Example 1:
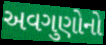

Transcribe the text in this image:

અવગુણોનો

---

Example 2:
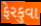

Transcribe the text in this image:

ફેરકુવા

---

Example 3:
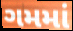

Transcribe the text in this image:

ગમમાં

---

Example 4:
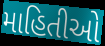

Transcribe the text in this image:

માહિતીઓ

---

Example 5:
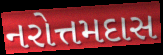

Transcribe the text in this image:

નરોત્તમદાસ